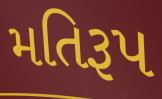
મતિરૂપ